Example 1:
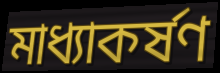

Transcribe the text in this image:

মাধ্যাকৰ্ষণ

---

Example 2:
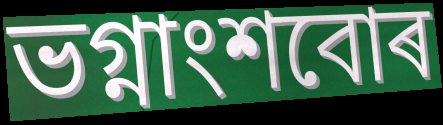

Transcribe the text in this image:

ভগ্নাংশবোৰ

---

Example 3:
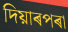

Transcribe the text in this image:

দিয়াৰপৰা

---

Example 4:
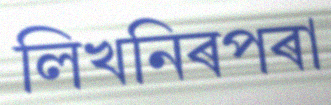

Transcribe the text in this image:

লিখনিৰপৰা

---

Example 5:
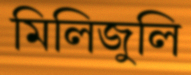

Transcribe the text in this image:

মিলিজুলি